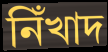
নিঁখাদ